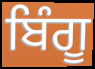
ਬਿੰਗੂ